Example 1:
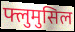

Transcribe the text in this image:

फ्लुमुसिल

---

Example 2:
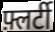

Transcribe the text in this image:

फ़्लर्टी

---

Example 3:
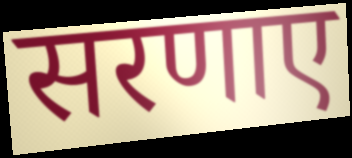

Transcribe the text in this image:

सरणाए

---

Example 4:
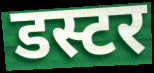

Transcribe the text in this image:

डस्टर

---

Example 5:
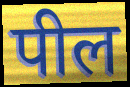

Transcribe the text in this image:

पील